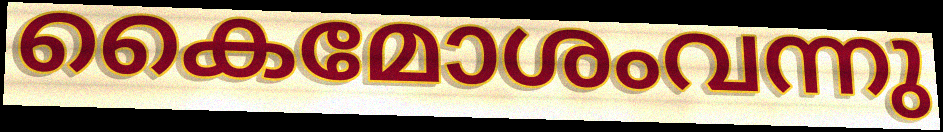
കൈമോശംവന്നു